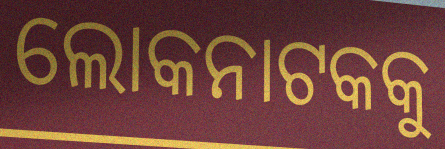
ଲୋକନାଟକକୁ